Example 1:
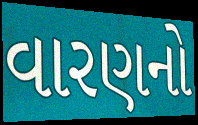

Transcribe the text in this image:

વારણનો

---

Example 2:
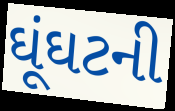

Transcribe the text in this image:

ઘૂંઘટની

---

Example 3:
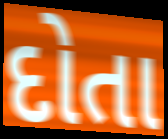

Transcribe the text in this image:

દોતા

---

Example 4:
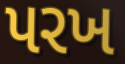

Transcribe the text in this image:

પરખ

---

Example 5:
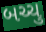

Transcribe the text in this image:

બચ્ચુ